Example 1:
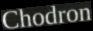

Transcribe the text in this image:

Chodron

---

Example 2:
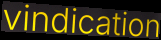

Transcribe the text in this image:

vindication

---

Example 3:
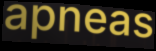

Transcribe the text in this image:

apneas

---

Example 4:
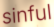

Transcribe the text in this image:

sinful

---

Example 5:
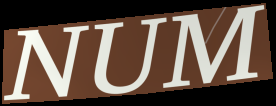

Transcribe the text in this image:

NUM